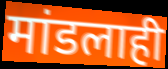
मांडलाही